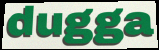
dugga